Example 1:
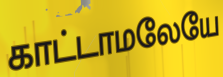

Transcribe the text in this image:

காட்டாமலேயே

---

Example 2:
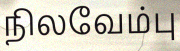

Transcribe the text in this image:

நிலவேம்பு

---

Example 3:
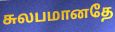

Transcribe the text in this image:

சுலபமானதே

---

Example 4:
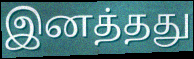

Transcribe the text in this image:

இனத்தது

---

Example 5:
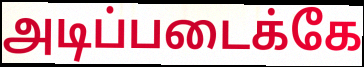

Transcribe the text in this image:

அடிப்படைக்கே